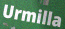
Urmilla